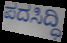
ಪದಸಿದ್ಧಿ